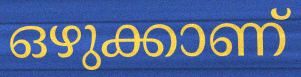
ഒഴുക്കാണ്